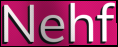
Nehf